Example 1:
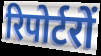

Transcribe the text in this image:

रिपोर्टरों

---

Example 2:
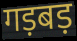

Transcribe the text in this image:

गड़बड़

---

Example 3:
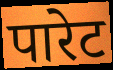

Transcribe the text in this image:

पारेट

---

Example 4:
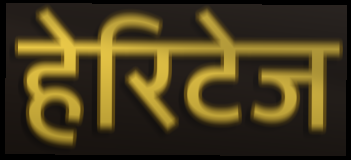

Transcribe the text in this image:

हेरिटेज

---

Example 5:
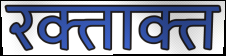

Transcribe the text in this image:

रक्ताक्त